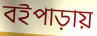
বইপাড়ায়